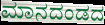
ಮಾನದಂಡದ